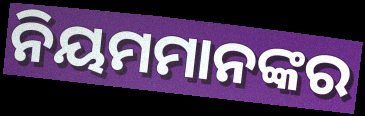
ନିୟମମାନଙ୍କର